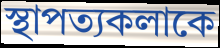
স্থাপত্যকলাকে